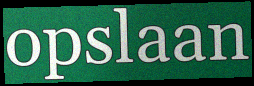
opslaan